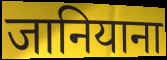
जानियाना